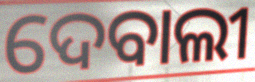
ଦେବାଲୀ